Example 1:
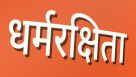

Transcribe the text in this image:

धर्मरक्षिता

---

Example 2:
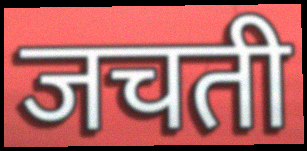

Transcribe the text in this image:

जचती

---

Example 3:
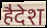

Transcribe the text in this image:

हैदेश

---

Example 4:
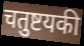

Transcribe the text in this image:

चतुष्टयकी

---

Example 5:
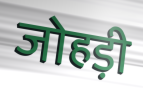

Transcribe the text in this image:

जोहड़ी